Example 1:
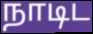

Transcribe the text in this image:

நாடிட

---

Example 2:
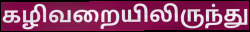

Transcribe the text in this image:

கழிவறையிலிருந்து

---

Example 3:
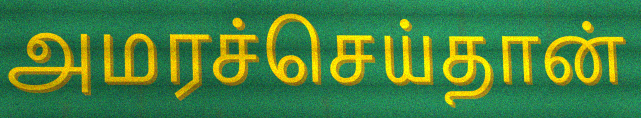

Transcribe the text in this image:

அமரச்செய்தான்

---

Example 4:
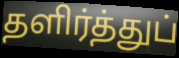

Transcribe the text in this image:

தளிர்த்துப்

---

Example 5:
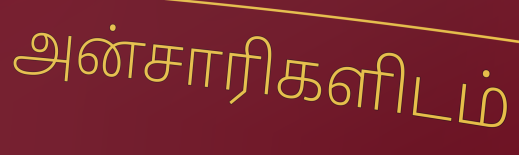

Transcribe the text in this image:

அன்சாரிகளிடம்